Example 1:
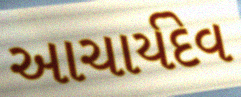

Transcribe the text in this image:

આચાર્યદેવ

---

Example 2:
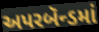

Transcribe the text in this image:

અપરબૅન્ડમાં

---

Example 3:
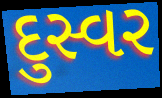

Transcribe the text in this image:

દુસ્વર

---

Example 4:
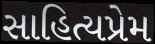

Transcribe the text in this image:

સાહિત્યપ્રેમ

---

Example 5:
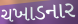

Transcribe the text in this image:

ચખાડનાર